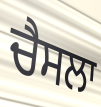
ਚੈਸਲਾ